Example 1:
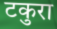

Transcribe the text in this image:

टकुरा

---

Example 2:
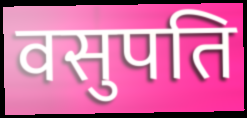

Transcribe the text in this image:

वसुपति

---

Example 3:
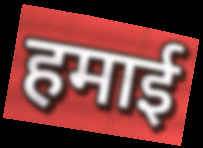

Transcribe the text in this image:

हमाई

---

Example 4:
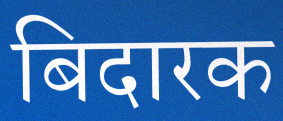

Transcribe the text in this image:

बिदारक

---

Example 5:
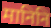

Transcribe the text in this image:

मानिनि